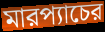
মারপ্যাচের